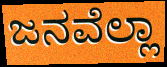
ಜನವೆಲ್ಲಾ